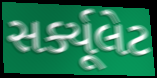
સર્ક્યૂલેટ